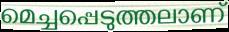
മെച്ചപ്പെടുത്തലാണ്